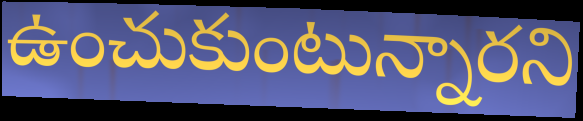
ఉంచుకుంటున్నారని